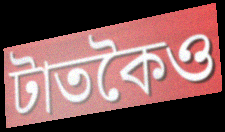
টাতকৈও